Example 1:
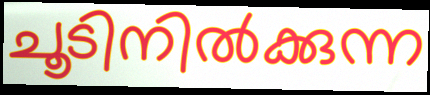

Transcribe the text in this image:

ചൂടിനിൽക്കുന്ന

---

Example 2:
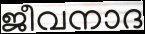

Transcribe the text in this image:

ജീവനാദ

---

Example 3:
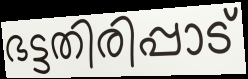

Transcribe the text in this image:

ഭട്ടതിരിപ്പാട്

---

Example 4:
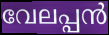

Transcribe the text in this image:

വേലപ്പൻ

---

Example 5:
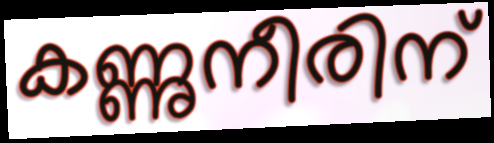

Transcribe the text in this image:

കണ്ണുനീരിന്